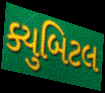
ક્યુબિટલ